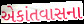
એકાંતવાસના